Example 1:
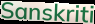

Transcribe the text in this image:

Sanskriti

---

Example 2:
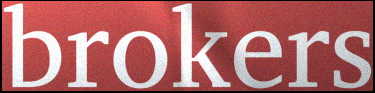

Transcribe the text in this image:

brokers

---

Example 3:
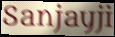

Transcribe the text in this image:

Sanjayji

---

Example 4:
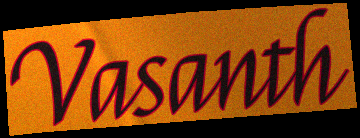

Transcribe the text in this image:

Vasanth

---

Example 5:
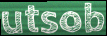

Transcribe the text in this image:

utsob